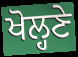
ਖੋਲ੍ਹਣੇ